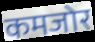
कमजोर